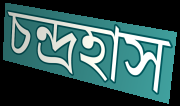
চন্দ্রহাস